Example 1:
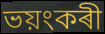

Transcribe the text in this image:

ভয়ংকৰী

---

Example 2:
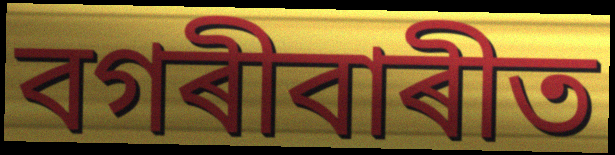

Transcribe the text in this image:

বগৰীবাৰীত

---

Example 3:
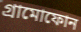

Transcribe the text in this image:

গ্ৰামোফোন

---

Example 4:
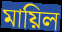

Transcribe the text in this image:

মায়িল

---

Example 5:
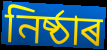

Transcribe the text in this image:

নিষ্ঠাৰ